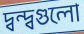
দ্বন্দ্বগুলো